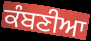
ਕੰਬਣੀਆ